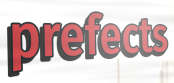
prefects